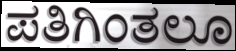
ಪತಿಗಿಂತಲೂ